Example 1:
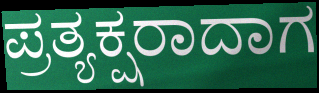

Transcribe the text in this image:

ಪ್ರತ್ಯಕ್ಷರಾದಾಗ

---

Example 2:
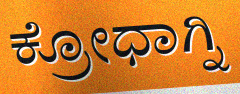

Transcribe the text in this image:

ಕ್ರೋಧಾಗ್ನಿ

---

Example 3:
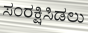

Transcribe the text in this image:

ಸಂರಕ್ಷಿಸಿಡಲು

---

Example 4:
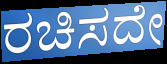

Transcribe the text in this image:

ರಚಿಸದೇ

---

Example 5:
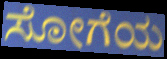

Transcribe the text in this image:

ಸೋಗೆಯ